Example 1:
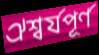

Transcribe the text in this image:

ঐশ্বর্যপূর্ণ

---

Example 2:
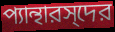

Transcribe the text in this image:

প্যান্থারস্‌দের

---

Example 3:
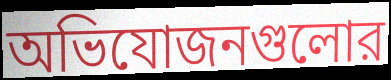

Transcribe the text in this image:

অভিযোজনগুলোর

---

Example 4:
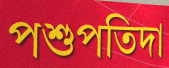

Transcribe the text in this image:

পশুপতিদা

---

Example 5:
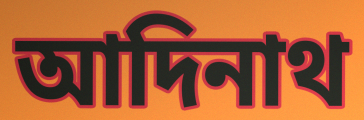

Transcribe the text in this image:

আদিনাথ